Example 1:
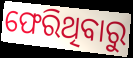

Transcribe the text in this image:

ଫେରିଥିବାରୁ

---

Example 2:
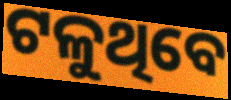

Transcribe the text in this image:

ଟଳୁଥିବେ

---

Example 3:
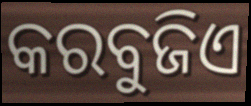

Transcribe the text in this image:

କରବୁଜିଏ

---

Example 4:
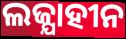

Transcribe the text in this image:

ଲଜ୍ଯାହୀନ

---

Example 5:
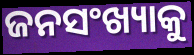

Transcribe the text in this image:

ଜନସଂଖ୍ୟାକୁ